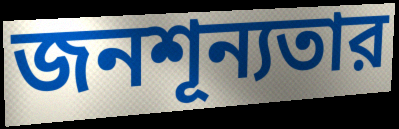
জনশূন্যতার